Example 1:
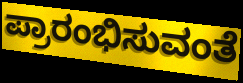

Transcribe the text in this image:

ಪ್ರಾರಂಭಿಸುವಂತೆ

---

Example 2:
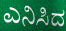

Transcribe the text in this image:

ಎನಿಸಿದ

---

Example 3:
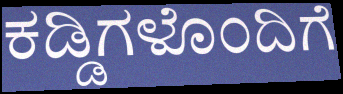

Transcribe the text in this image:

ಕಡ್ಡಿಗಳೊಂದಿಗೆ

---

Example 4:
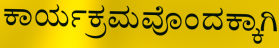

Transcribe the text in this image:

ಕಾರ್ಯಕ್ರಮವೊಂದಕ್ಕಾಗಿ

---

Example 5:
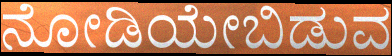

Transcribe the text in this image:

ನೋಡಿಯೇಬಿಡುವ